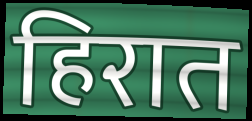
हिरात